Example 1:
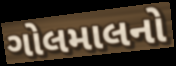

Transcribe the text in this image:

ગોલમાલનો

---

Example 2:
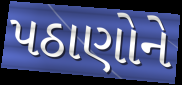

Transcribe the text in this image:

પઠાણોને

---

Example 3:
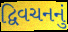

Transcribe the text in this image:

દ્વિવચનનું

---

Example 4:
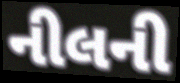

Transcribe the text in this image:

નીલની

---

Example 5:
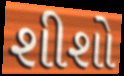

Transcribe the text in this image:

શીશો